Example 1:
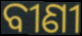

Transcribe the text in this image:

ବୀଣୀ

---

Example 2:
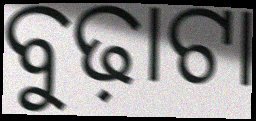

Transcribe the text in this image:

ବୁଢ଼ାଟା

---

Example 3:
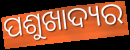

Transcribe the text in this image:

ପଶୁଖାଦ୍ୟର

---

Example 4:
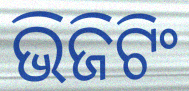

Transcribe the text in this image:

ଭିଜିଟିଂ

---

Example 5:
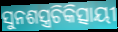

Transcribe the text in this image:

ସୁନଶସ୍ତ୍ରଚିକିତ୍ସାୟୀ